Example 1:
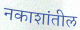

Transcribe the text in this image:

नकाशांतील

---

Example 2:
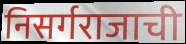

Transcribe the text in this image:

निसर्गराजाची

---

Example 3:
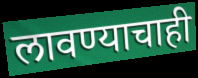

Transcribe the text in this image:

लावण्याचाही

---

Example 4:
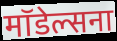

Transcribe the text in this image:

मॉडेल्सना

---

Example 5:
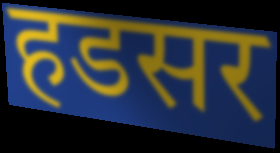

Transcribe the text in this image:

हडसर